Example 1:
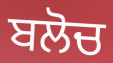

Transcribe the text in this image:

ਬਲੋਚ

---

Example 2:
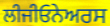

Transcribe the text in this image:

ਲੀਜੀਓਨੇਅਰਸ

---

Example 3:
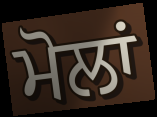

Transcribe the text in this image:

ਮੋਲਾਂ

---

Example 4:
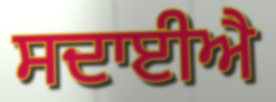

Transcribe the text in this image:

ਸਦਾਈਐ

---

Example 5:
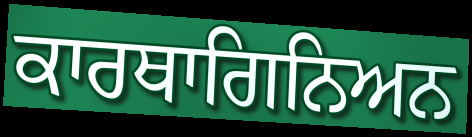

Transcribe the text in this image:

ਕਾਰਥਾਗਿਨਿਅਨ